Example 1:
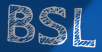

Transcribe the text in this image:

BSL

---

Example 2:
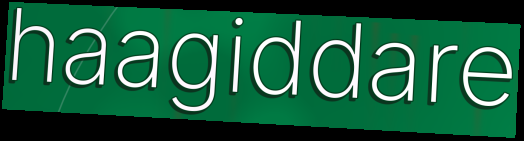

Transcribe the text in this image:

haagiddare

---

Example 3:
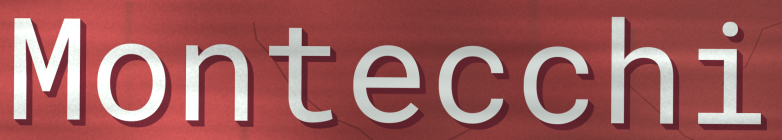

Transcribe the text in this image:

Montecchi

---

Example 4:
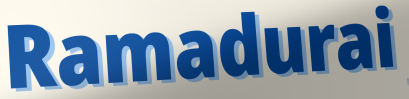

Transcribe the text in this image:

Ramadurai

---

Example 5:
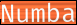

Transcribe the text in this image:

Numba